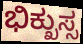
ಭಿಕ್ಖುಸ್ಸ